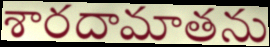
శారదామాతను